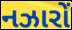
નઝારોં